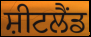
ਸ਼ੀਟਲੈਂਡ